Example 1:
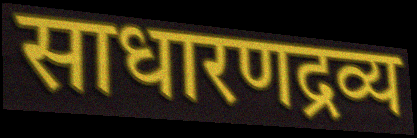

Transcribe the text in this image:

साधारणद्रव्य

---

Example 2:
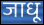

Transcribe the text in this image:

जाधू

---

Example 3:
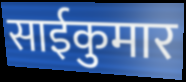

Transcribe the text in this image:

साईकुमार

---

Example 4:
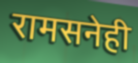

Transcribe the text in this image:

रामसनेही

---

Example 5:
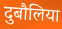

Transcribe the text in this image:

दुबौलिया